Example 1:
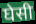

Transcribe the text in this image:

घेसी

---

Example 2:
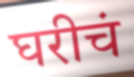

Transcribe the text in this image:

घरीचं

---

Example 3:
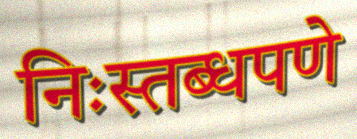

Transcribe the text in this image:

निःस्तब्धपणे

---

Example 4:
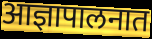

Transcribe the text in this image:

आज्ञापालनात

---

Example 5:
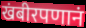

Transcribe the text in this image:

खंबीरपणानं